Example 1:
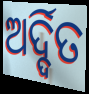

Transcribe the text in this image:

ଅର୍ଦ୍ଦିତ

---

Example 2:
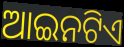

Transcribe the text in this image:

ଆଇନଟିଏ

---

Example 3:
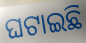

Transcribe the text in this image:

ଘଟାଇଛି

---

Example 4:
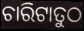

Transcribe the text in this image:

ଚାରିଟାତୁଠ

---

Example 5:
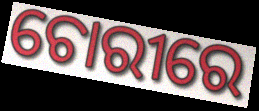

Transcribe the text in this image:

ଚୋରୀରେ